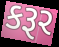
કરૂર